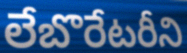
లేబొరేటరీని